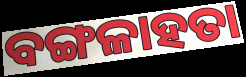
ବଙ୍ଗଳାହତା